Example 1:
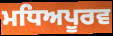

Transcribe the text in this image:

ਮਧਿਅਪੂਰਵ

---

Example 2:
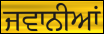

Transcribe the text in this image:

ਜਵਾਨੀਆਂ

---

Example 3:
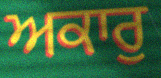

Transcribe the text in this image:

ਅਕਾਰੁ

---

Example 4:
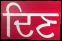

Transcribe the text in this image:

ਦਿਣ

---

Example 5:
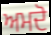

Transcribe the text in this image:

ਅਮਦੋ